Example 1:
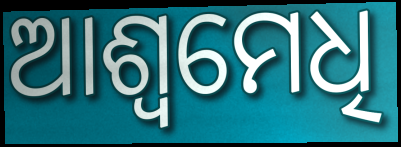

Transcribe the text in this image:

ଆଶ୍ୱମେଧି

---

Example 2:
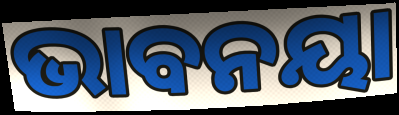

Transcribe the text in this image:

ଭାବନୟା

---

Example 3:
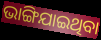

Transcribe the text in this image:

ଭାଙ୍ଗିଯାଇଥିବା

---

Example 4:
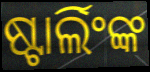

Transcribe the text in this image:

ଷ୍ଟାର୍ଲିଂଙ୍କ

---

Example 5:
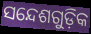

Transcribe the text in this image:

ସନ୍ଦେଶଗୁଡ଼ିକ